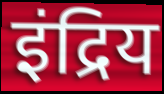
इंद्रिय